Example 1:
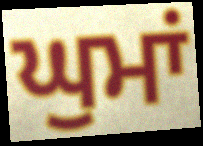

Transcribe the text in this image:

ਘੁਮਾਂ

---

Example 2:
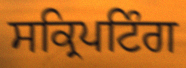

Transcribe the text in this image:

ਸਕ੍ਰਿਪਟਿੰਗ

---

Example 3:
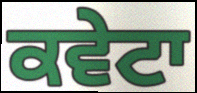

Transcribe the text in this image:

ਕਵੇਟਾ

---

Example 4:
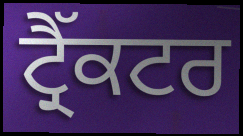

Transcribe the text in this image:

ਟ੍ਰੈੱਕਟਰ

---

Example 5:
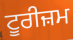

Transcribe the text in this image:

ਟੂਰੀਜ਼ਮ